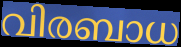
വിരബാധ